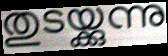
തുടയ്ക്കുന്നു